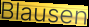
Blausen